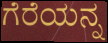
ಗೆರೆಯನ್ನ